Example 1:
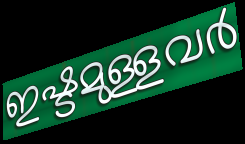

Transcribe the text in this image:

ഇഷ്ടമുള്ളവർ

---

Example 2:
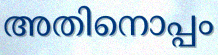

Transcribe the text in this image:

അതിനൊപ്പം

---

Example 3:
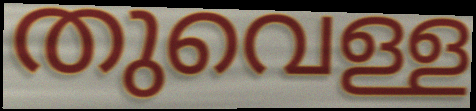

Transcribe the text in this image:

തുവെള്ള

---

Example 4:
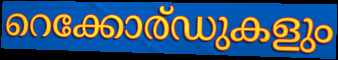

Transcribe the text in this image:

റെക്കോര്ഡുകളും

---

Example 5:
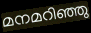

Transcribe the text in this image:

മനമറിഞ്ഞു